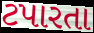
ટપારતા